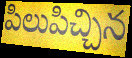
పిలుపిచ్చిన